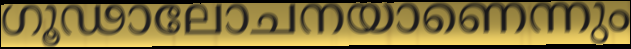
ഗൂഢാലോചനയാണെന്നും